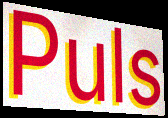
Puls